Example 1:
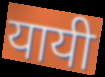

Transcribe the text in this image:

यायी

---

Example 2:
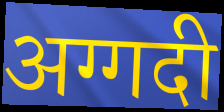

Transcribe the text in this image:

अग्गदी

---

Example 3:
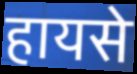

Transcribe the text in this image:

हायसे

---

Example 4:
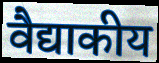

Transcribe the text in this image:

वैद्याकीय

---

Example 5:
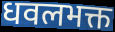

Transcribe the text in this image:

धवलभक्त